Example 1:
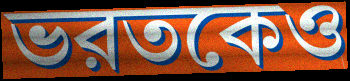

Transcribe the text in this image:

ভরতকেও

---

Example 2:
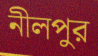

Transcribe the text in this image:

নীলপুর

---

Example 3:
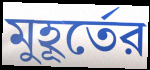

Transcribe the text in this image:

মুহূর্তের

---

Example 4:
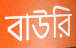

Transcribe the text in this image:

বাউরি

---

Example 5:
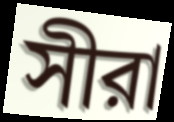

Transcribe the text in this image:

সীরা